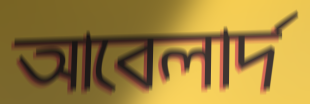
আবেলার্দ